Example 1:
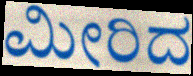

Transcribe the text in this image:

ಮೀರಿದ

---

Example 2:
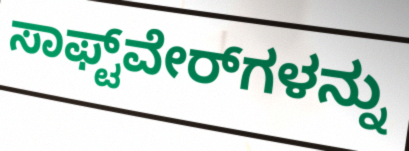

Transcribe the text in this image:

ಸಾಫ್ಟ್‌ವೇರ್‌ಗಳನ್ನು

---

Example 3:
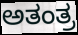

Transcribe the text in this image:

ಅತಂತ್ರ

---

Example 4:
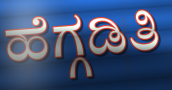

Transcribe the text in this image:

ಹೆಗ್ಗಡಿತಿ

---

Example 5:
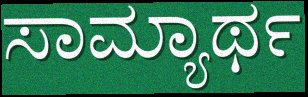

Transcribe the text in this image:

ಸಾಮ್ಯಾರ್ಥ